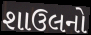
શાઉલનો